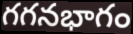
గగనభాగం